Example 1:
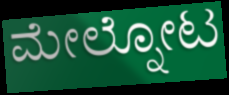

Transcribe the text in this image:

ಮೇಲ್ನೋಟ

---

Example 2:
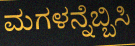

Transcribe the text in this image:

ಮಗಳನ್ನೆಬ್ಬಿಸಿ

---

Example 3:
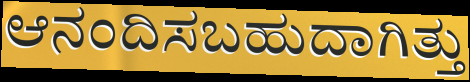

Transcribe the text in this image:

ಆನಂದಿಸಬಹುದಾಗಿತ್ತು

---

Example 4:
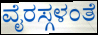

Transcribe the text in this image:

ವೈರಸ್ಗಳಂತೆ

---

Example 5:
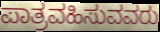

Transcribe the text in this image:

ಪಾತ್ರವಹಿಸುವವರು